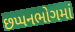
છપ્પનભોગમાં